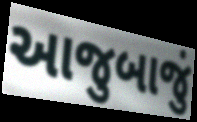
આજુબાજું